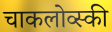
चाकलोव्स्की